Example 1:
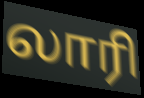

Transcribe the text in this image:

லாரி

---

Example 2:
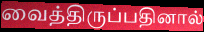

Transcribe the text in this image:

வைத்திருப்பதினால்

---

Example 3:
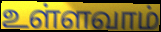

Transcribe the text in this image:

உள்ளவாம்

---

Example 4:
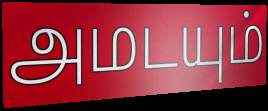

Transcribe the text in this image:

அமடயும்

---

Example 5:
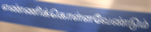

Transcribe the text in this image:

எண்ணிக்கொள்ளவேண்டும்